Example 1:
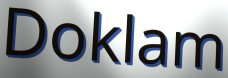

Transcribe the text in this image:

Doklam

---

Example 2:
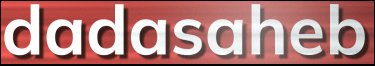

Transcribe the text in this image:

dadasaheb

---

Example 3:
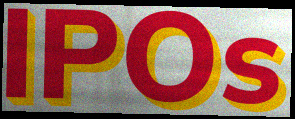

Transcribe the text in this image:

IPOs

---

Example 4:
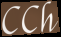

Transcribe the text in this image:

CCh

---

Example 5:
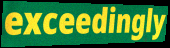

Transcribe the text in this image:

exceedingly